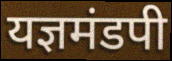
यज्ञमंडपी